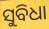
ସୁବିଧା